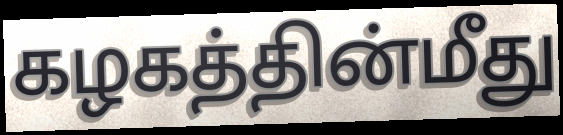
கழகத்தின்மீது